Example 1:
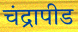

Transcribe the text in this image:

चंद्रापीड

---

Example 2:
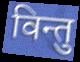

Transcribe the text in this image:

विन्तु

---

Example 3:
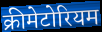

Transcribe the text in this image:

क्रीमेटोरियम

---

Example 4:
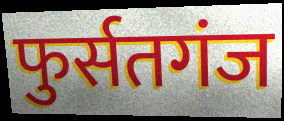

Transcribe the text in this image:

फुर्सतगंज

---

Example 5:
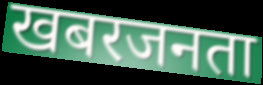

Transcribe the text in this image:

खबरजनता